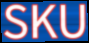
SKU